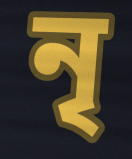
নৃ